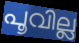
പൂവില്ല